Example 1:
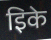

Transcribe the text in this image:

इिके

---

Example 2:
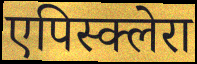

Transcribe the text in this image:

एपिस्क्लेरा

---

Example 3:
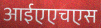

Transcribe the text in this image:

आईएएचएस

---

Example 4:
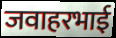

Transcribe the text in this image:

जवाहरभाई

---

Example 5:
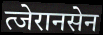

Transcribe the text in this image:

त्जेरानसेन